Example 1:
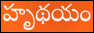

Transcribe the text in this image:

హృథయం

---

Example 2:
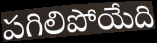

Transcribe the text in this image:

పగిలిపోయేది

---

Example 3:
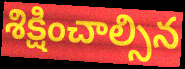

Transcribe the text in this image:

శిక్షించాల్సిన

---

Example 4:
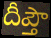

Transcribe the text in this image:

దీప్తౌ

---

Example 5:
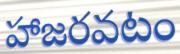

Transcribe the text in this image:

హాజరవటం